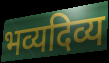
भव्यदिव्य